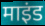
माइंड